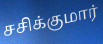
சசிக்குமார்